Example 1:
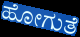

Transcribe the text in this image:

ಹೋಗುತೆ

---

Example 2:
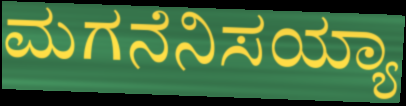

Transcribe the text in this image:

ಮಗನೆನಿಸಯ್ಯಾ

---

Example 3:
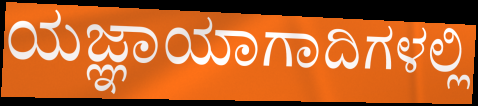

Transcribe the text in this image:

ಯಜ್ಞಾಯಾಗಾದಿಗಳಲ್ಲಿ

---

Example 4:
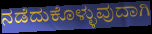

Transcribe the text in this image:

ನಡೆದುಕೊಳ್ಳುವುದಾಗಿ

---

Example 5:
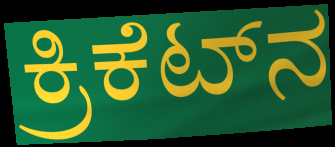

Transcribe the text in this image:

ಕ್ರಿಕೆಟ್‌ನ